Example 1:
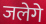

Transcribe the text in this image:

जलेगे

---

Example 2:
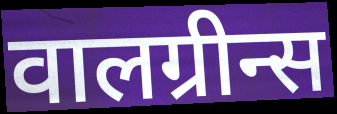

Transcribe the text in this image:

वालग्रीन्स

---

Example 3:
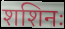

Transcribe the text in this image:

शशिनः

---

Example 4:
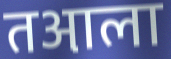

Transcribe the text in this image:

तआ़ला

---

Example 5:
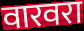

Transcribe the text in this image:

वारवरा